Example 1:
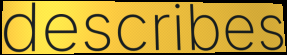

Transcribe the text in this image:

describes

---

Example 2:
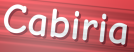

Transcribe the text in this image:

Cabiria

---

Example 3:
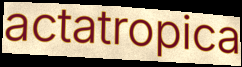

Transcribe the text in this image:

actatropica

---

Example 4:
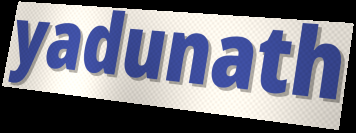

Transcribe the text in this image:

yadunath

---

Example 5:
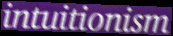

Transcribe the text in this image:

intuitionism